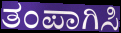
ತಂಪಾಗಿಸಿ